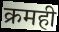
क्रमही